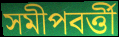
সমীপবর্ত্তী